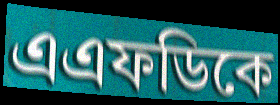
এএফডিকে